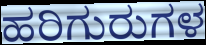
ಹರಿಗುರುಗಳ